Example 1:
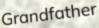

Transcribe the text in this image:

Grandfather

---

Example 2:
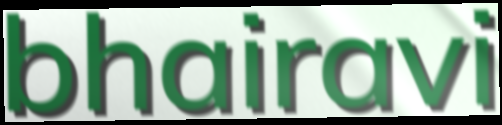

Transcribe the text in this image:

bhairavi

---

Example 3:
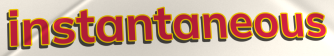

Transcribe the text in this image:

instantaneous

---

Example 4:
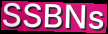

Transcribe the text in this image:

SSBNs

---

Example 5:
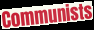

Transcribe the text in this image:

Communists